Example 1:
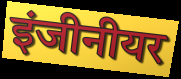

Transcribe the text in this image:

इंजीनीयर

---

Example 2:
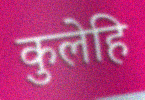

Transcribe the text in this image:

कुलेहि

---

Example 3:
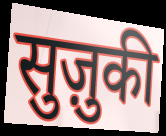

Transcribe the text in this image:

सुज़ुकी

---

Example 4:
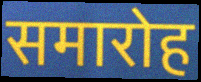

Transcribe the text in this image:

समारोह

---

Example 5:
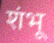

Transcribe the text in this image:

शंभू